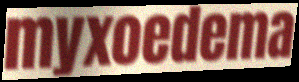
myxoedema